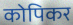
कोपिकर